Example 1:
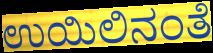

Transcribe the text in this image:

ಉಯಿಲಿನಂತೆ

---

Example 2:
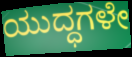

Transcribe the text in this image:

ಯುದ್ಧಗಳೇ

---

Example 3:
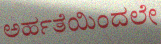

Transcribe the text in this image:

ಅರ್ಹತೆಯಿಂದಲೇ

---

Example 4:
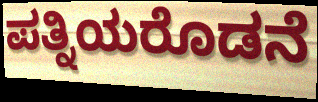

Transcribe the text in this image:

ಪತ್ನಿಯರೊಡನೆ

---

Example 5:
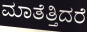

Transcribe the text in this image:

ಮಾತೆತ್ತಿದರೆ